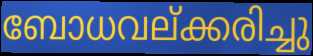
ബോധവല്ക്കരിച്ചു